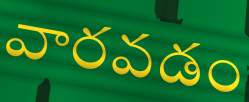
వారవడం